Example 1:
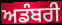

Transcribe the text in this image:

ਅਡੰਬਰੀ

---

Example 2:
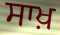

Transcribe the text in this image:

ਸਾਖ਼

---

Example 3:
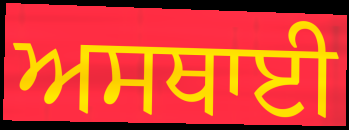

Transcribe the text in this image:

ਅਸਥਾਈ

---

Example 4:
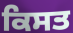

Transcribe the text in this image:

ਕਿਸਤ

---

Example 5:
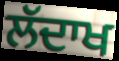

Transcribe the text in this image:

ਲੱਦਾਖ